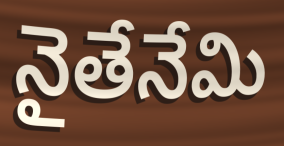
నైతేనేమి